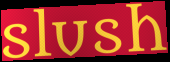
slush